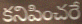
కనిపించరే